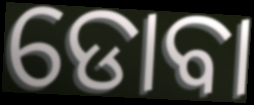
ଡୋବା